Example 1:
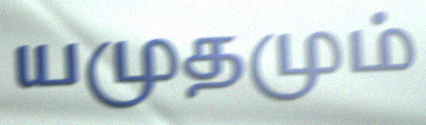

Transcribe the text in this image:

யமுதமும்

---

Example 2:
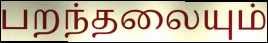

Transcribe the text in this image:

பறந்தலையும்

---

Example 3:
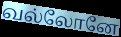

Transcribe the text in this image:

வல்லோனே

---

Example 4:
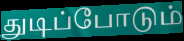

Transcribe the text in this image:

துடிப்போடும்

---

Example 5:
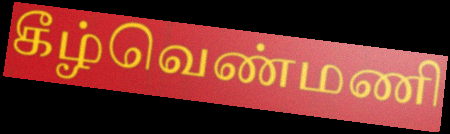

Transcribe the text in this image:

கீழ்வெண்மணி